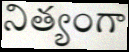
నిత్యంగా